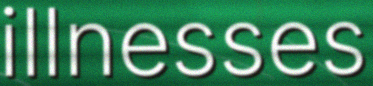
illnesses